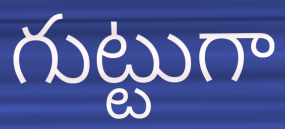
గుట్టుగా